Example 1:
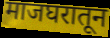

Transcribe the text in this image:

माजघरातून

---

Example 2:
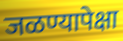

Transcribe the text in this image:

जळण्यापेक्षा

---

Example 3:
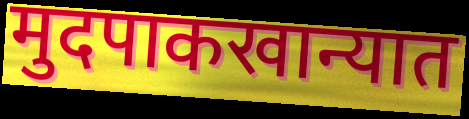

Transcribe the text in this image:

मुदपाकखान्यात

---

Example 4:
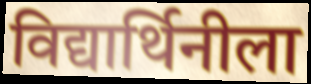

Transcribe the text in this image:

विद्यार्थिनीला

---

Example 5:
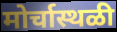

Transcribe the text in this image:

मोर्चास्थळी